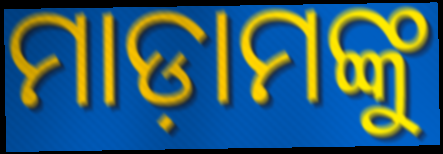
ମାଡ଼ାମଙ୍କୁ